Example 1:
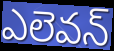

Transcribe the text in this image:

ఎలెవన్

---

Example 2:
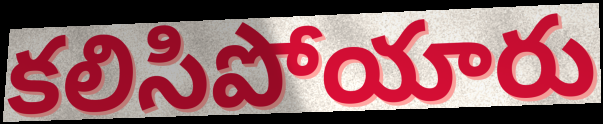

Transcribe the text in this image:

కలిసిపోయారు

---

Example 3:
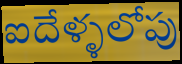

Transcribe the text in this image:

ఐదేళ్ళలోపు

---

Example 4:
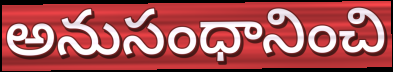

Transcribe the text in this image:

అనుసంధానించి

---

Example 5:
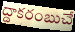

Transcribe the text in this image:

ద్దాకరంబుచే